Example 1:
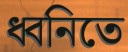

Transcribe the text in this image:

ধ্বনিতে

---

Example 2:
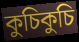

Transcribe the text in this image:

কুচিকুচি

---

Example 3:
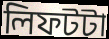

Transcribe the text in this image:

লিফটটা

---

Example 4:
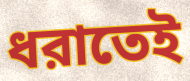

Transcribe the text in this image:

ধরাতেই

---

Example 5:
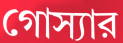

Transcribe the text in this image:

গোস্যার